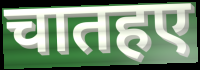
चातहए